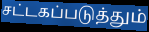
சட்டகப்படுத்தும்